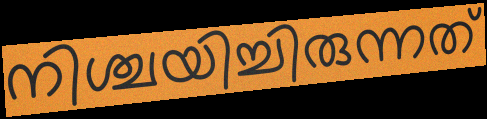
നിശ്ചയിച്ചിരുന്നത്